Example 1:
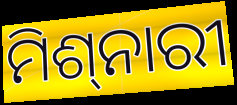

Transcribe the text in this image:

ମିଶ୍‍ନାରୀ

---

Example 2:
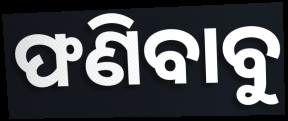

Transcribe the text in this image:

ଫଣିବାବୁ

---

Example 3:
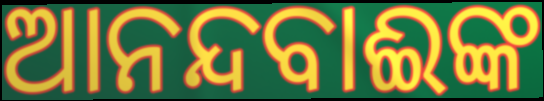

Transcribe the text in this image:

ଆନନ୍ଦବାଈଙ୍କ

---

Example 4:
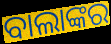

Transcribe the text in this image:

ବାଲାଙ୍କର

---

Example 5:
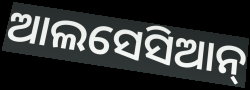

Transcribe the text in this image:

ଆଲସେସିଆନ୍